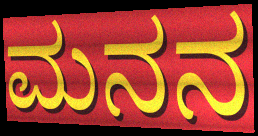
ಮನನ